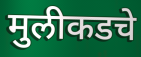
मुलीकडचे